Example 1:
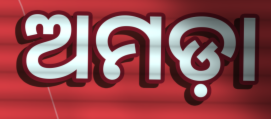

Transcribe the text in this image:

ଅମଡ଼ା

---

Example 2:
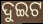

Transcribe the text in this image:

ଦୁଇଟ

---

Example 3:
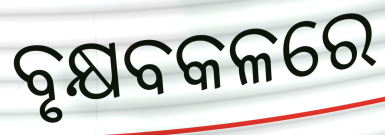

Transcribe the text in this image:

ବୃକ୍ଷବକଳରେ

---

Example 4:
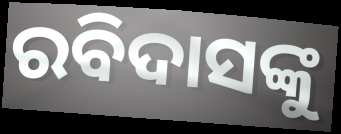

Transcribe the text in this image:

ରବିଦାସଙ୍କୁ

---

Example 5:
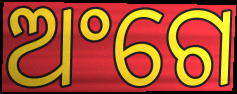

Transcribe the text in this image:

ଅଂଗେ